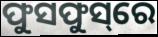
ଫୁସଫୁସ୍‌ରେ